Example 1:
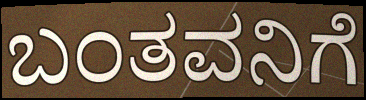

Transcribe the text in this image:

ಬಂತವನಿಗೆ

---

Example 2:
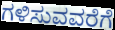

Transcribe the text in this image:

ಗಳಿಸುವವರೆಗೆ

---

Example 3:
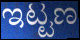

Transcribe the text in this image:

ಇಟ್ಟಣ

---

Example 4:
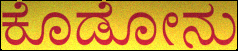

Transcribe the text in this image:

ಕೊಡೋನು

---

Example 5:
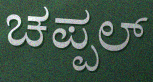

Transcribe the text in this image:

ಚಪ್ಪಲ್